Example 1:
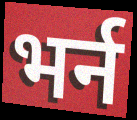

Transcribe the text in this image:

भर्न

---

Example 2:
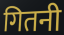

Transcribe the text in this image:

गितनी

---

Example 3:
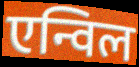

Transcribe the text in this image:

एन्विल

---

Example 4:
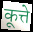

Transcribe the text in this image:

कूत्ते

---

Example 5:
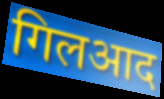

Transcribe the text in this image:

गिलआद